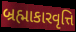
બ્રહ્માકારવૃત્તિ